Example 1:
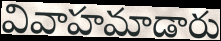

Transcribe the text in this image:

వివాహమాడారు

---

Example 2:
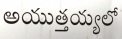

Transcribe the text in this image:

అయుత్తయ్యలో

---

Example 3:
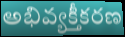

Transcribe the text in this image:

అభివ్యక్తీకరణ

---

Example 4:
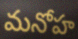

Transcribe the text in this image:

మనోహ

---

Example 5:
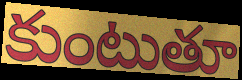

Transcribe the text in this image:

కుంటుతూ